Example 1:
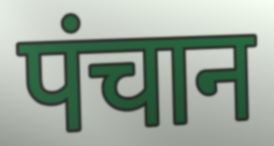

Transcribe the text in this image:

पंचान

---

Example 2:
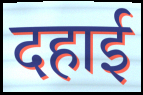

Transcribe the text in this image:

दहाई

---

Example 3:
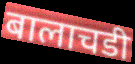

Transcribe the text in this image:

बालाचडी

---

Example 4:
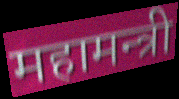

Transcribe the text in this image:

महामन्त्री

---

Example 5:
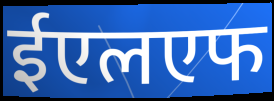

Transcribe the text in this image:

ईएलएफ